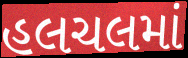
હલચલમાં